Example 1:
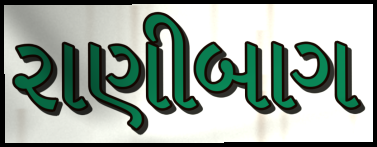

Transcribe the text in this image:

રાણીબાગ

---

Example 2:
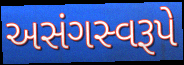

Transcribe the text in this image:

અસંગસ્વરૂપે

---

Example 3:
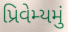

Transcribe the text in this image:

પ્રિવેમ્યમું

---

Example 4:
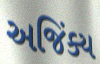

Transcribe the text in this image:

અજિંક્ય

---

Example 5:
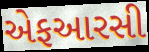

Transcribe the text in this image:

એફઆરસી